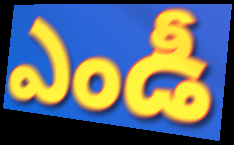
ఎండీ